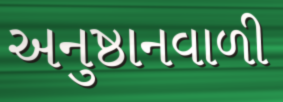
અનુષ્ઠાનવાળી